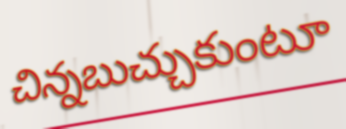
చిన్నబుచ్చుకుంటూ